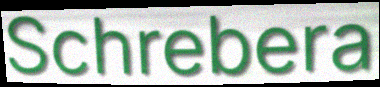
Schrebera